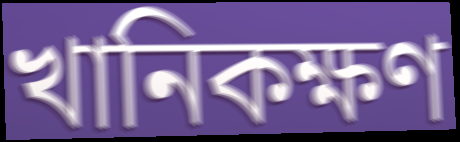
খানিকক্ষণ